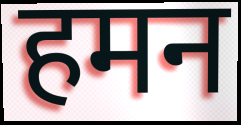
हमन